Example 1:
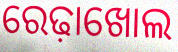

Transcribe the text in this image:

ରେଢ଼ାଖୋଲ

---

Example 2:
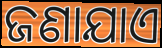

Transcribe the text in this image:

ଜଣାଯାଏ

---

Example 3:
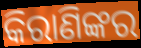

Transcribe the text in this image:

କିରାଣିଙ୍କର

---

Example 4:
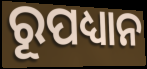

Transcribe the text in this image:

ରୂପଧ୍ୟାନ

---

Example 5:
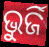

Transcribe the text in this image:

ଭୁର୍ଜି